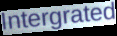
Intergrated